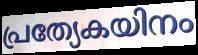
പ്രത്യേകയിനം